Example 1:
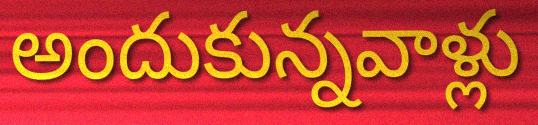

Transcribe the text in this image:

అందుకున్నవాళ్లు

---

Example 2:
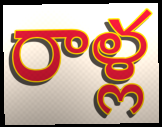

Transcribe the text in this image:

రాళ్ల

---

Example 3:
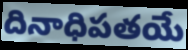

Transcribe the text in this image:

దినాధిపతయే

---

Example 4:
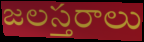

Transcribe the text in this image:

జలస్తరాలు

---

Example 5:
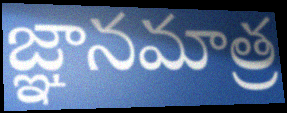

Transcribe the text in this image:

జ్ఞానమాత్ర